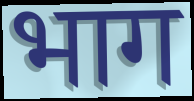
भाग